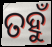
ତହୁଁ